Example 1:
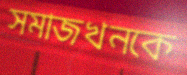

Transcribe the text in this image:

সমাজখনকে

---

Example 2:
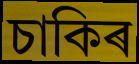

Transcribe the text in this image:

চাকিৰ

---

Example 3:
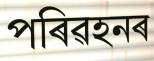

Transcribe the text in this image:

পৰিৱহনৰ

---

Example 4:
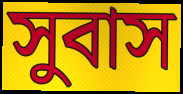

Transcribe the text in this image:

সুবাস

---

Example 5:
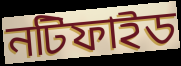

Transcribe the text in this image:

নটিফাইড